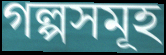
গল্পসমূহ